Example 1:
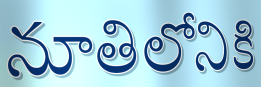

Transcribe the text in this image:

నూతిలోనికి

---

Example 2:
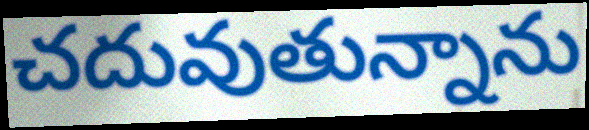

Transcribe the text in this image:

చదువుతున్నాను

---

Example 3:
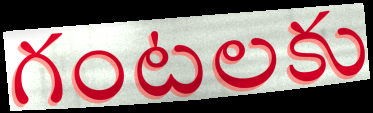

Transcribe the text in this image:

గంటలకు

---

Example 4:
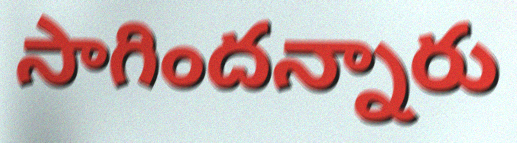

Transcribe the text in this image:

సాగిందన్నారు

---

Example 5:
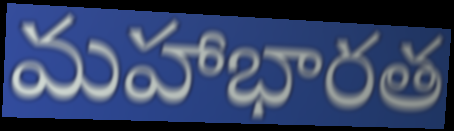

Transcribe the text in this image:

మహాభారత